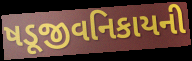
ષડૂજીવનિકાયની